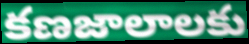
కణజాలాలకు